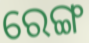
ରେଙ୍ଗ